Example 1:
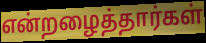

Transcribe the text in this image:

என்றழைத்தார்கள்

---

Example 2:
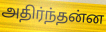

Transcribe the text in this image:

அதிர்ந்தன்ன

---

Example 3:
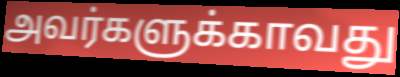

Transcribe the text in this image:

அவர்களுக்காவது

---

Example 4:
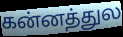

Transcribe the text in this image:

கன்னத்துல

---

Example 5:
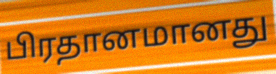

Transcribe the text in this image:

பிரதானமானது